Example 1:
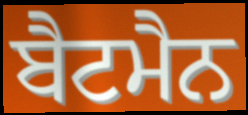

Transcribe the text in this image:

ਬੈਟਮੈਨ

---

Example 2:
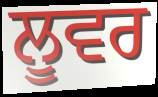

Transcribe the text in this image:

ਲੂਵਰ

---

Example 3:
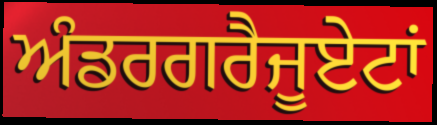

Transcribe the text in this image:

ਅੰਡਰਗਰੈਜੂਏਟਾਂ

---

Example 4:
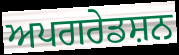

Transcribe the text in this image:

ਅਪਗਰੇਡਸ਼ਨ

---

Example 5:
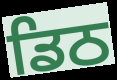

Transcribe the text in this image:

ਡਿਠ